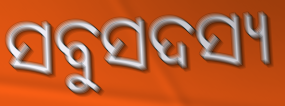
ସବୁସଦସ୍ୟ